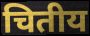
चितीय